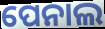
ପେନାଲ